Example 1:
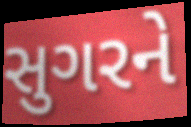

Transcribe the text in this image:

સુગરને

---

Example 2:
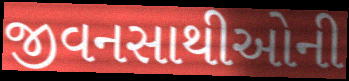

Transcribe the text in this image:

જીવનસાથીઓની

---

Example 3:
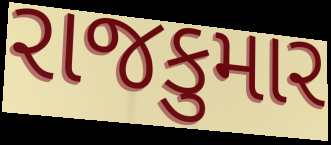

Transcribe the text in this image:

રાજકુમાર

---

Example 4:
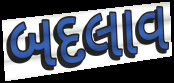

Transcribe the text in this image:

બદલાવ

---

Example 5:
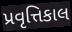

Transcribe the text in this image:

પ્રવૃત્તિકાલ